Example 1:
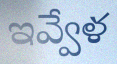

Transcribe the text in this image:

ఇవ్వేళ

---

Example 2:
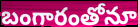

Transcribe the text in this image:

బంగారంతోనూ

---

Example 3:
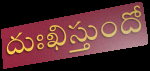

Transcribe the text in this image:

దుఃఖిస్తుందో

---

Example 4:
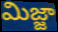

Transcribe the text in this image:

మిజ్జా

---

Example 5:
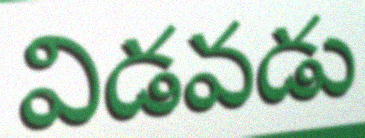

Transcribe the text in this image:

విడవడు